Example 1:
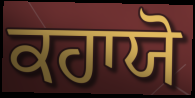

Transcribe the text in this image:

ਕਹਾਯੋ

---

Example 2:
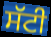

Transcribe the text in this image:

ਸੱਟੀ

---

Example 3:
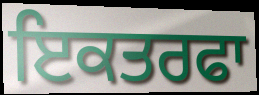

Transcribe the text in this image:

ਇਕਤਰਫਾ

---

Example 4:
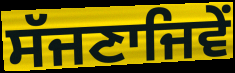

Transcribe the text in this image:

ਸੱਜਣਾਜਿਵੇਂ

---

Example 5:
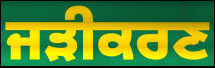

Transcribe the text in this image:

ਜੜੀਕਰਣ